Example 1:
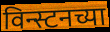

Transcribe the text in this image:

विन्स्टनच्या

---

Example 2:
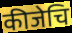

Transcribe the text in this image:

कीजेचि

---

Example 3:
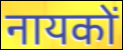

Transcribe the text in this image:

नायकों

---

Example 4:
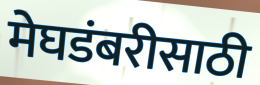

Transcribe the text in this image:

मेघडंबरीसाठी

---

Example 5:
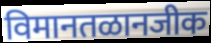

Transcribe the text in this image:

विमानतळानजीक